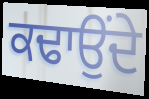
ਕਢਾਉਂਦੇ